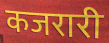
कजरारी